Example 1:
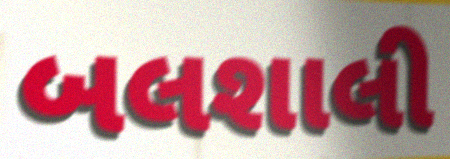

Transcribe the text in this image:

બલશાલી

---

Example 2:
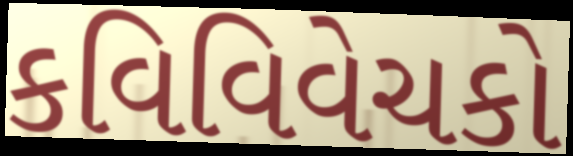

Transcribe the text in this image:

કવિવિવેચકો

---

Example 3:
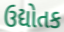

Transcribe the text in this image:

ઉદ્યોતક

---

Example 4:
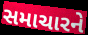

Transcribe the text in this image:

સમાચારને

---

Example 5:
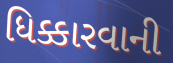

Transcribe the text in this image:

ધિક્કારવાની